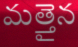
మత్తైన